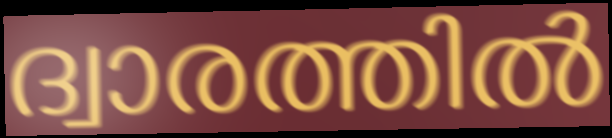
ദ്വാരത്തിൽ